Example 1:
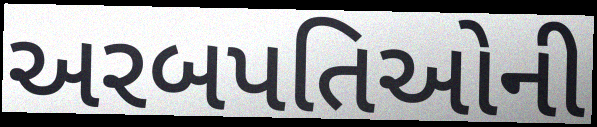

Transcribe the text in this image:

અરબપતિઓની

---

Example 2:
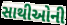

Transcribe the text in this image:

સાથીઓની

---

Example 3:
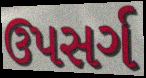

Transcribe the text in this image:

ઉપસર્ગ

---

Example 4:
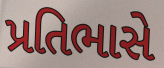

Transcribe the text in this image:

પ્રતિભાસે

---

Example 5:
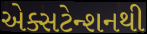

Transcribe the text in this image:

એક્સટેન્શનથી